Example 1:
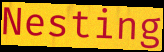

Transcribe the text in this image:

Nesting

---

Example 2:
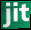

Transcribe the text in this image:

jit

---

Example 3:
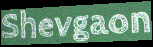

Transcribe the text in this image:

Shevgaon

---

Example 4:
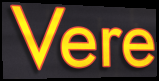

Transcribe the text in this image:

Vere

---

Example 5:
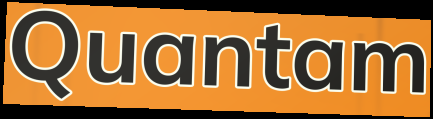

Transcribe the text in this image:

Quantam